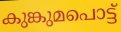
കുങ്കുമപൊട്ട്